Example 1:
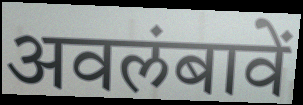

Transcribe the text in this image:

अवलंबावें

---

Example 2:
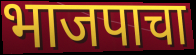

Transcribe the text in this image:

भाजपाचा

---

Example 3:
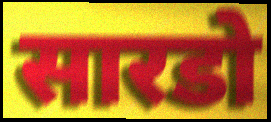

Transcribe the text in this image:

सारडो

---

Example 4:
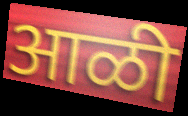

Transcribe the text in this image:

आळी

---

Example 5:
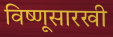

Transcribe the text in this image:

विष्णूसारखी